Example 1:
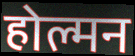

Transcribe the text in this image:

होल्मन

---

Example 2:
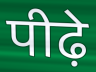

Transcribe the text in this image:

पीढ़े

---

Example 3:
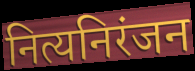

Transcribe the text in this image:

नित्यनिरंजन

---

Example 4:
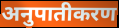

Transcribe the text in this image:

अनुपातीकरण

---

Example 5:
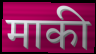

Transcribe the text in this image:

माकी